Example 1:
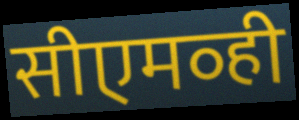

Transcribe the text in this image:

सीएमव्ही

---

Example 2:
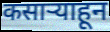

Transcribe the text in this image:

कसाऱ्याहून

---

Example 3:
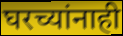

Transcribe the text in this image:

घरच्यांनाही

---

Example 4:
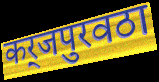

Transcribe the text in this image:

कर्जपुरवठा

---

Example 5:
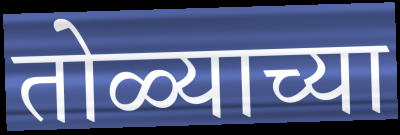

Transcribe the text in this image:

तोळ्याच्या